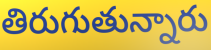
తిరుగుతున్నారు